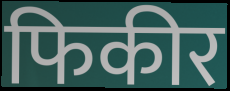
फिकीर